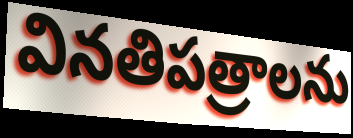
వినతిపత్రాలను